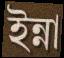
ইন্না